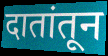
दातांतून